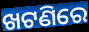
ଖଟଣିରେ